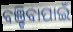
ବଞ୍ଚିବାପାଇଁ